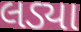
લડ્યા